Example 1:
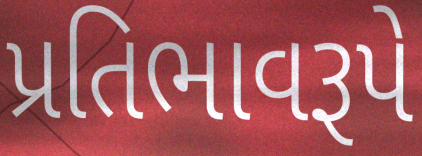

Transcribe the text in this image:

પ્રતિભાવરૂપે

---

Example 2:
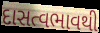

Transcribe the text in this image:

દાસત્વભાવથી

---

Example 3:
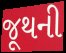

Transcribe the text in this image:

જૂથની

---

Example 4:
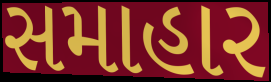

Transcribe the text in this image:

સમાહાર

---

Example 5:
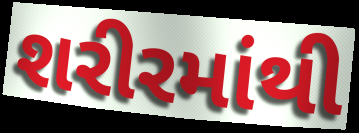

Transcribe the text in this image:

શરીરમાંથી